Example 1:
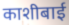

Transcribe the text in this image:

काशीबाई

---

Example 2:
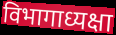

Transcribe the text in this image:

विभागाध्यक्षा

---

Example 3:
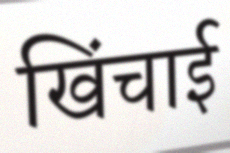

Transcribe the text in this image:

खिंचाई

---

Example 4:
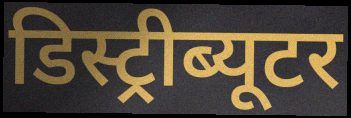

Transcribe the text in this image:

डिस्ट्रीब्यूटर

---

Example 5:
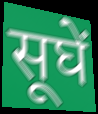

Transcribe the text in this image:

सूघें